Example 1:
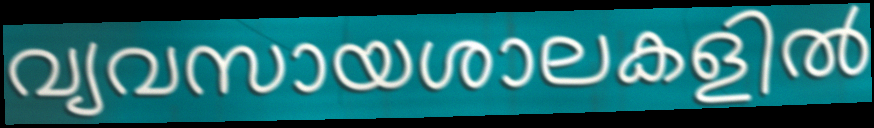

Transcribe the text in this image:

വ്യവസായശാലകളിൽ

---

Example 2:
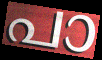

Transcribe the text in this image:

പാ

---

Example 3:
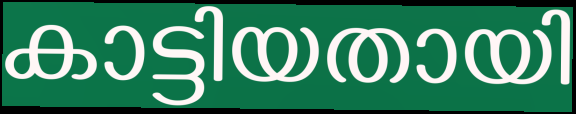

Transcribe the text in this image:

കാട്ടിയതായി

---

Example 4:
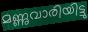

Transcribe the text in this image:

മണ്ണുവാരിയിട്ടു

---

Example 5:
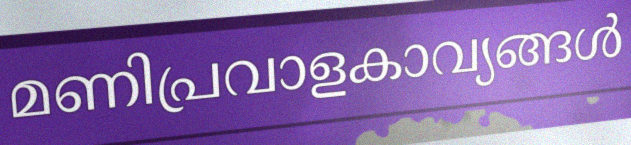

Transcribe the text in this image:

മണിപ്രവാളകാവ്യങ്ങൾ